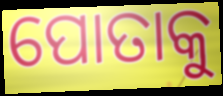
ପୋତାକୁ